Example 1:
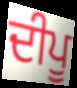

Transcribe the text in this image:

ਦੀਪੂ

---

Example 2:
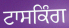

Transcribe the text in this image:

ਟਾਸਕਿੰਗ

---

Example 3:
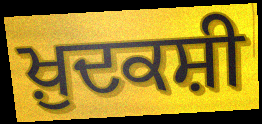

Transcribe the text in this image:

ਖ਼ੁਦਕਸ਼ੀ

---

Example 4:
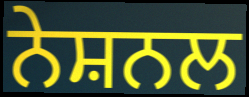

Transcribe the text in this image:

ਨੇਸ਼ਨਲ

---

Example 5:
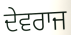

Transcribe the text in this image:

ਦੇਵਰਾਜ